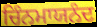
ਚਿੰਨਮਾਯਨੰਦ